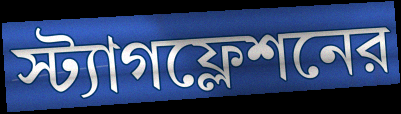
স্ট্যাগফ্লেশনের